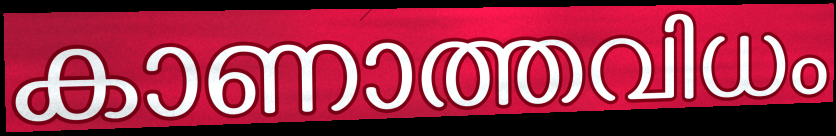
കാണാത്തവിധം